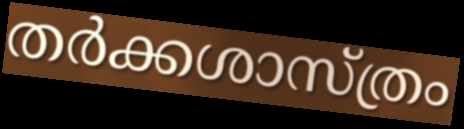
തർക്കശാസ്ത്രം